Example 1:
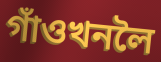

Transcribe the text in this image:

গাঁওখনলৈ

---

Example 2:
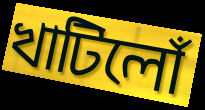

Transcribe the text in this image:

খাটিলোঁ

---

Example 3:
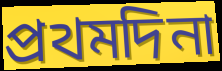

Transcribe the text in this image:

প্ৰথমদিনা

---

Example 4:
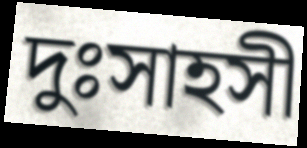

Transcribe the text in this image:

দুঃসাহসী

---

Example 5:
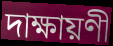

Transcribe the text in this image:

দাক্ষায়ণী